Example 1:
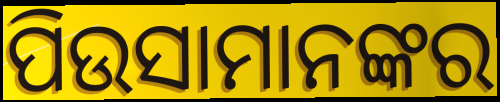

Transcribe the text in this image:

ପିଉସାମାନଙ୍କର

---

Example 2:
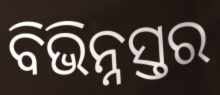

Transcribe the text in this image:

ବିଭିନ୍ନସ୍ତର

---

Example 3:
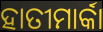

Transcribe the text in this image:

ହାତୀମାର୍କା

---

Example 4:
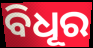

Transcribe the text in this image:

ବିଧୂର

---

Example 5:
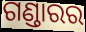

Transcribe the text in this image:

ଗଣ୍ଡାରର